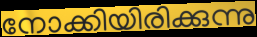
നോക്കിയിരിക്കുന്നു